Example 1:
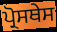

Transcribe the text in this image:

ਪ੍ਰੋਸਥੇਸ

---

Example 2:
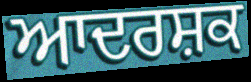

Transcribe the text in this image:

ਆਦਰਸ਼ਕ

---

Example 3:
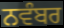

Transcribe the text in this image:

ਨਵੰਬਰ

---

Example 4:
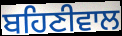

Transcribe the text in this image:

ਬਹਿਣੀਵਾਲ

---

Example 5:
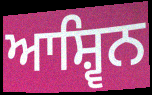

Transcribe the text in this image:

ਆਸ਼੍ਵਿਨ